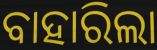
ବାହାରିଲା